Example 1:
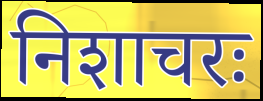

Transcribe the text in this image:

निशाचरः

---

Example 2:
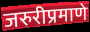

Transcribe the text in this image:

जरुरीप्रमाणे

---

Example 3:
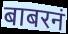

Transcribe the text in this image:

बाबरनं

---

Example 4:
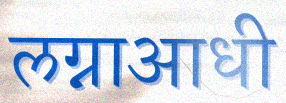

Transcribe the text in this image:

लग्नाआधी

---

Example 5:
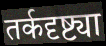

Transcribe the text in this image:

तर्कदृष्ट्या